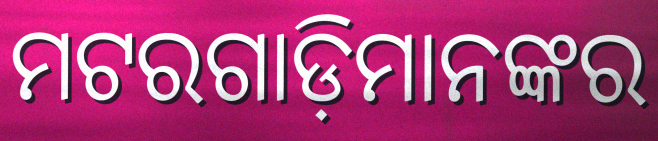
ମଟରଗାଡ଼ିମାନଙ୍କର